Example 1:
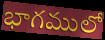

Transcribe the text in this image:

భాగములో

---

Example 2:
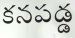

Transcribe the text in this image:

కనపడ్డ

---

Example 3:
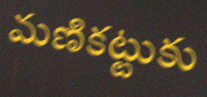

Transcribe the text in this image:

మణికట్టుకు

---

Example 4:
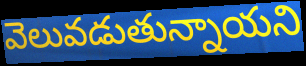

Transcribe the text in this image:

వెలువడుతున్నాయని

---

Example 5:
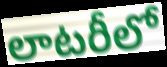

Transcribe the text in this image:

లాటరీలో